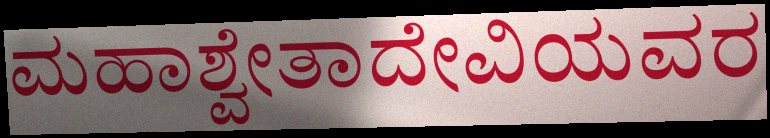
ಮಹಾಶ್ವೇತಾದೇವಿಯವರ